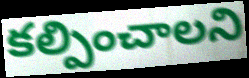
కల్పించాలని